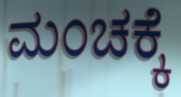
ಮಂಚಕ್ಕೆ